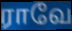
ராவே